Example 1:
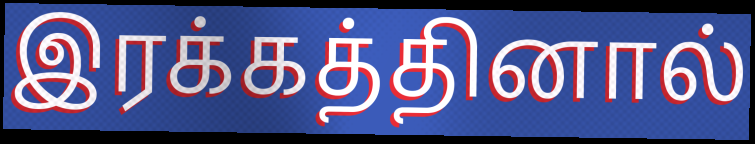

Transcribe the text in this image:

இரக்கத்தினால்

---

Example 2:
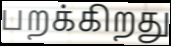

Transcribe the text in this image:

பறக்கிறது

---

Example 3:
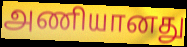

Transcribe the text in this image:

அணியானது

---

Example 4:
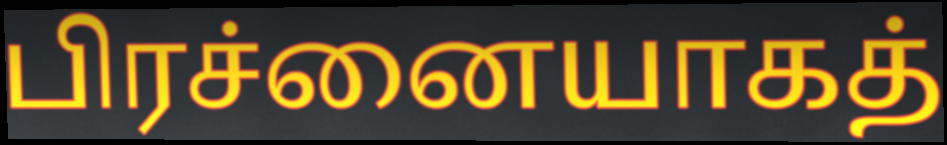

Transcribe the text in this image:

பிரச்னையாகத்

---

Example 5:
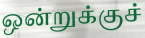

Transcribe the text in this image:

ஒன்றுக்குச்